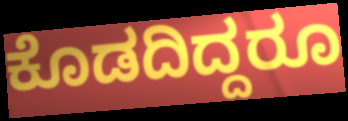
ಕೊಡದಿದ್ದರೂ